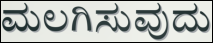
ಮಲಗಿಸುವುದು